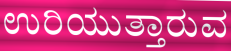
ಉರಿಯುತ್ತಾರುವ